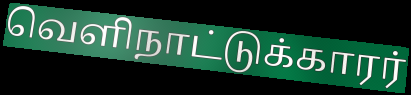
வெளிநாட்டுக்காரர்